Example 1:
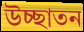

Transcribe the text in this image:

উচ্ছাতন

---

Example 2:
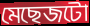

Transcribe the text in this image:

মেছেজটো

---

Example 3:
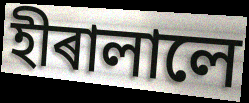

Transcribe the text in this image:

হীৰালালে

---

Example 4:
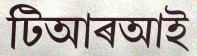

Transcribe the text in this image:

টিআৰআই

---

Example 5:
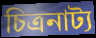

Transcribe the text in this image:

চিত্ৰনাট্য